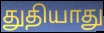
துதியாது